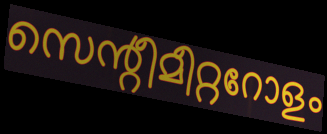
സെന്റീമീറ്ററോളം